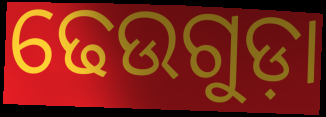
ଢେଉଗୁଡ଼ା